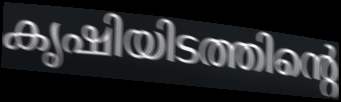
കൃഷിയിടത്തിന്റെ